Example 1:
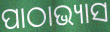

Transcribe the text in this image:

ପାଠାଭ୍ୟାସ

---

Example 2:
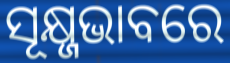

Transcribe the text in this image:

ସୂକ୍ଷ୍ଜଭାବରେ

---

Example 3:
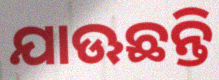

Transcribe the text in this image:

ଯାଊଛନ୍ତି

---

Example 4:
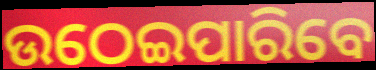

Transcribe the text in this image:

ଉଠେଇପାରିବେ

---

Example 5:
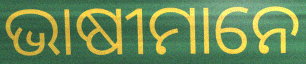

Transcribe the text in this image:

ଭାଷୀମାନେ